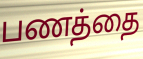
பணத்தை